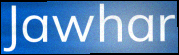
Jawhar